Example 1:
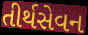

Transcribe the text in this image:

તીર્થસેવન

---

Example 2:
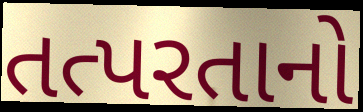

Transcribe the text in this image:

તત્પરતાનો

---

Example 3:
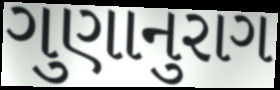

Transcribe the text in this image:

ગુણાનુરાગ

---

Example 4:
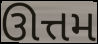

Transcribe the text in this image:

ઊત્તમ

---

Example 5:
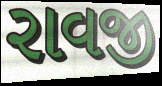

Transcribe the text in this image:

રાવજી